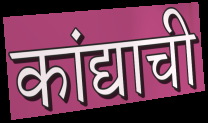
कांद्याची